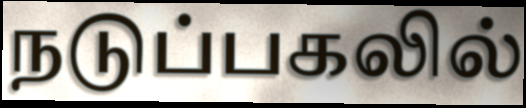
நடுப்பகலில்